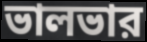
ভালভার